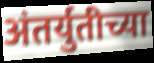
अंतर्युतीच्या